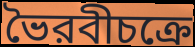
ভৈরবীচক্রে